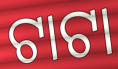
ଟାଟା